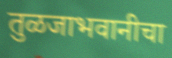
तुळजाभवानीचा